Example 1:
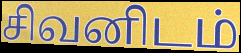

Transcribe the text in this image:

சிவனிடம்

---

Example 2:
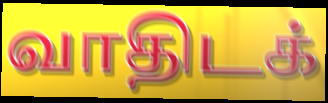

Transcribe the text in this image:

வாதிடக்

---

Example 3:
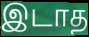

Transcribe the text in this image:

இடாத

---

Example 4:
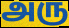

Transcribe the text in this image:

அரு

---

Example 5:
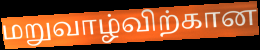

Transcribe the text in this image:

மறுவாழ்விற்கான